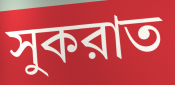
সুকরাত